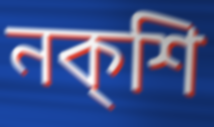
নক্‌শি